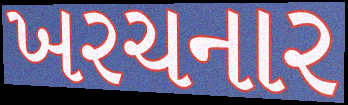
ખરચનાર